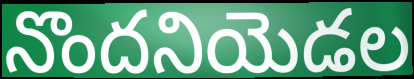
నొందనియెడల